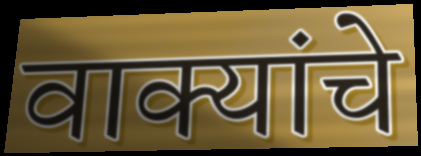
वाक्यांचे